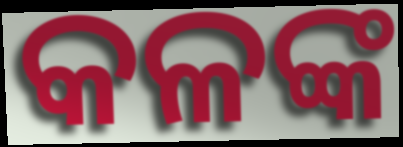
କଳଙ୍କ